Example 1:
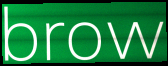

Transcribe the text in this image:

brow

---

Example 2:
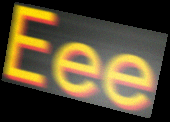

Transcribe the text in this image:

Eee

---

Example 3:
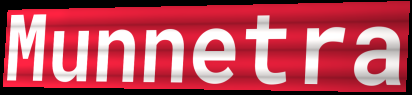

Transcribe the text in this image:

Munnetra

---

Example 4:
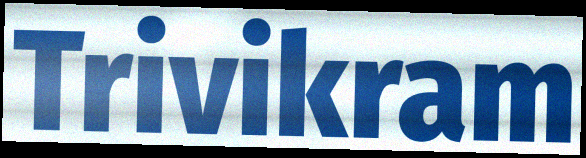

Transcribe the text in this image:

Trivikram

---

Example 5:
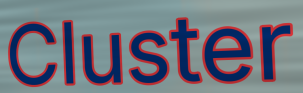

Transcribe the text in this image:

Cluster